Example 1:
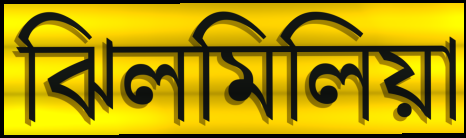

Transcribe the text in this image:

ঝিলমিলিয়া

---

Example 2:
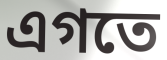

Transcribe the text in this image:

এগতে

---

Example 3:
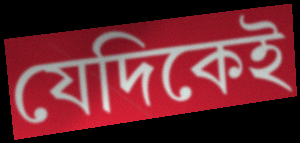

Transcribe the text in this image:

যেদিকেই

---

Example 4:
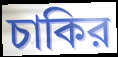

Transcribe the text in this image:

চাকির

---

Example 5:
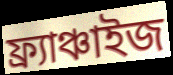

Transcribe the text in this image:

ফ্র্যাঞ্চাইজ